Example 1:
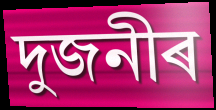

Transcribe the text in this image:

দুজনীৰ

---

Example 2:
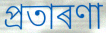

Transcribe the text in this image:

প্ৰতাৰণা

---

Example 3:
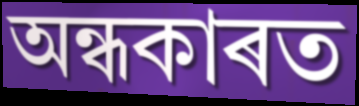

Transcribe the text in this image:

অন্ধকাৰত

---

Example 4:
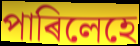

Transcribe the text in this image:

পাৰিলেহে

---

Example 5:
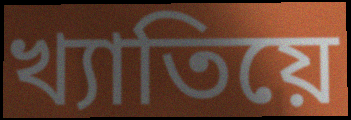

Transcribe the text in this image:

খ্যাতিয়ে